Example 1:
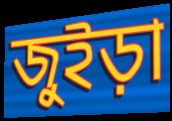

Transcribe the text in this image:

জুইড়া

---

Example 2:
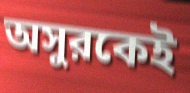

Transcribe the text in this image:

অসুরকেই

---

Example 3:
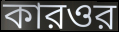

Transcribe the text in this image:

কারওর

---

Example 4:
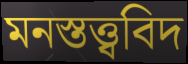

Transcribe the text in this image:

মনস্তত্ত্ববিদ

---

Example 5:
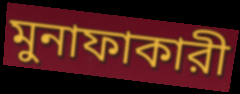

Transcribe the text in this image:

মুনাফাকারী